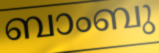
ബാംബു